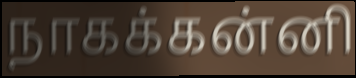
நாகக்கன்னி